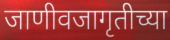
जाणीवजागृतीच्या